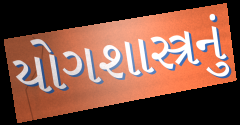
યોગશાસ્ત્રનું